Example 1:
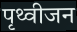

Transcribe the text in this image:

पृथ्वीजन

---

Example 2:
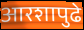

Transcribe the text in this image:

आरशापुढे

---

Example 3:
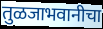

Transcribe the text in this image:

तुळजाभवानीचा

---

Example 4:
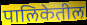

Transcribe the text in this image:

पालिकेतील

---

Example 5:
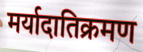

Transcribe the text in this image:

मर्यादातिक्रमण